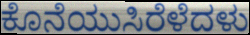
ಕೊನೆಯುಸಿರೆಳೆದಳು